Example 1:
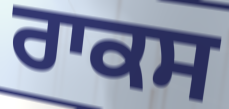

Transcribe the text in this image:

ਰਾਕਸ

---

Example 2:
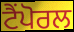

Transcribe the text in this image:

ਟੈਂਪੋਰਲ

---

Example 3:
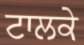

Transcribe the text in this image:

ਟਾਲਕੇ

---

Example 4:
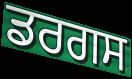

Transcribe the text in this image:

ਡਰਗਸ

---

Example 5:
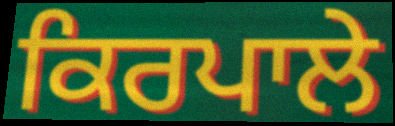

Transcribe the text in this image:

ਕਿਰਪਾਲੇ